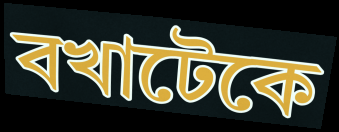
বখাটেকে